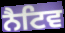
ਨੈਟਿਵ